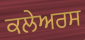
ਕਲੇਅਰਸ